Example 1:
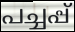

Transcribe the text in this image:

പച്ചപ്പ്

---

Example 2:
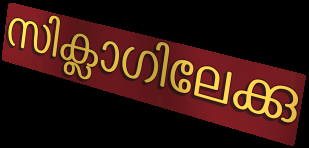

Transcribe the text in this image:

സിക്ലാഗിലേക്കു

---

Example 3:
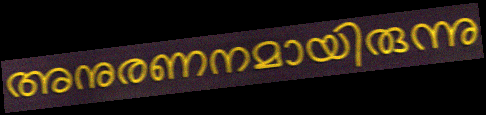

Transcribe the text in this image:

അനുരണനമായിരുന്നു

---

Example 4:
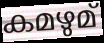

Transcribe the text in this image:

കമഴുമ്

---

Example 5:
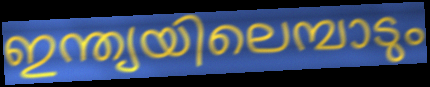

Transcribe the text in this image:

ഇന്ത്യയിലെമ്പാടും